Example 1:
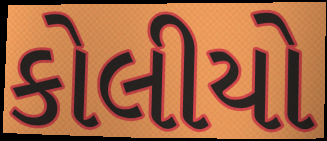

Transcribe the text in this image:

કોલીયો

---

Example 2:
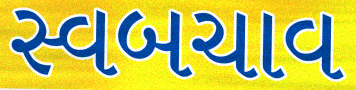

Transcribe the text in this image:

સ્વબચાવ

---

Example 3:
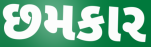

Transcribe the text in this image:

છમકાર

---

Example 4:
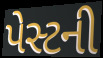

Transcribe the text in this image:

પેસ્ટની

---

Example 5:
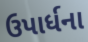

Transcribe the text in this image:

ઉપાર્ધના